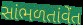
સાંભળતાંવેંત